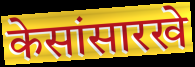
केसांसारखे